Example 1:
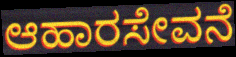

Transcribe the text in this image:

ಆಹಾರಸೇವನೆ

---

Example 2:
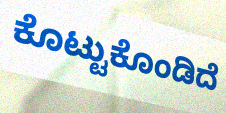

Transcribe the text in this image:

ಕೊಟ್ಟುಕೊಂಡಿದೆ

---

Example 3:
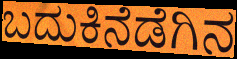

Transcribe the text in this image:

ಬದುಕಿನೆಡೆಗಿನ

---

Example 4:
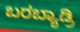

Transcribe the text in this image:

ಬರಬ್ಯಾಡ್ರಿ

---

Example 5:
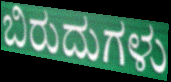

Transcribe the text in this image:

ಬಿರುದುಗಳು